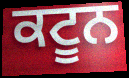
ਕਟੂਨ